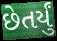
છેતર્યું